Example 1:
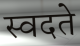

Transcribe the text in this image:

स्वदते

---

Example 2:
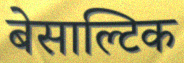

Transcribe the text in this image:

बेसाल्टिक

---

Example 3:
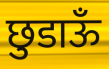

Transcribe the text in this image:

छुडाऊँ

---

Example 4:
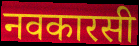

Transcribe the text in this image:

नवकारसी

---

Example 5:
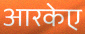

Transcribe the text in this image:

आरकेए